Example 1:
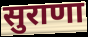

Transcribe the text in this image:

सुराणा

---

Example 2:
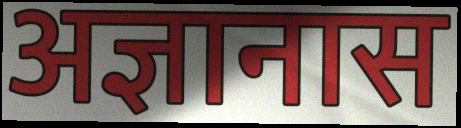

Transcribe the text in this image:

अज्ञानास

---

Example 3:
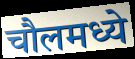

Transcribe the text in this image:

चौलमध्ये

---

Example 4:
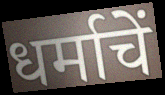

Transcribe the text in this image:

धर्माचें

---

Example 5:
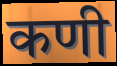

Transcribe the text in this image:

कणी